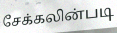
சேக்கலின்படி